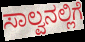
ಸಾಲ್ವನಲ್ಲಿಗೆ